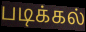
படிக்கல்